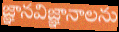
జ్ఞానవిజ్ఞానాలను